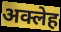
अक्लेह